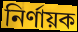
নিৰ্ণায়ক